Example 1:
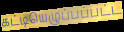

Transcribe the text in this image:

கட்டியெழுப்பப்பட்ட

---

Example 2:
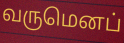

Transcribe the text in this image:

வருமெனப்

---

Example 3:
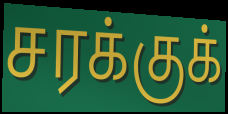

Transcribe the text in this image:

சரக்குக்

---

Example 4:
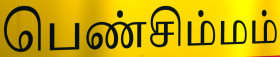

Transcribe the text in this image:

பெண்சிம்மம்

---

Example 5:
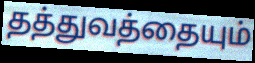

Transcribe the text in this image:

தத்துவத்தையும்